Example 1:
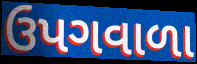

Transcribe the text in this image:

ઉપગવાળા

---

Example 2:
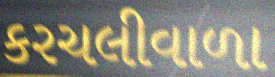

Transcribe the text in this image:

કરચલીવાળા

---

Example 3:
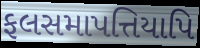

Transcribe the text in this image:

ફલસમાપત્તિયાપિ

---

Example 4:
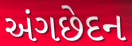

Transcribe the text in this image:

અંગછેદન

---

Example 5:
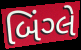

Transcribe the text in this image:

બિંગ્લે